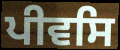
ਪੀਵਸਿ